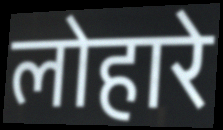
लोहारे